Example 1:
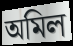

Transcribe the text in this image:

অমিল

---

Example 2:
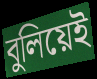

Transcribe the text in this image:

বুলিয়েই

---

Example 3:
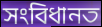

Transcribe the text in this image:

সংবিধানত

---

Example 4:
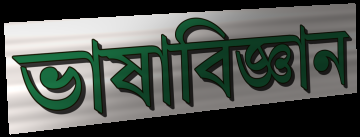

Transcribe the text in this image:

ভাষাবিজ্ঞান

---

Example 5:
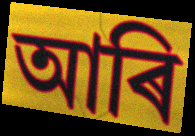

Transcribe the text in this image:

আৰি